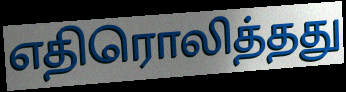
எதிரொலித்தது